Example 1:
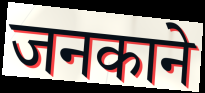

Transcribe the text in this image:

जनकाने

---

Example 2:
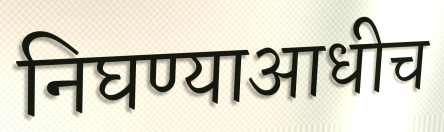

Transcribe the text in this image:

निघण्याआधीच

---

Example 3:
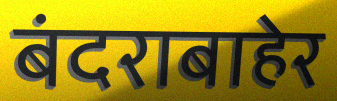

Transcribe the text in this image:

बंदराबाहेर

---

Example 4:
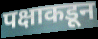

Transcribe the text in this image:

पक्षाकडून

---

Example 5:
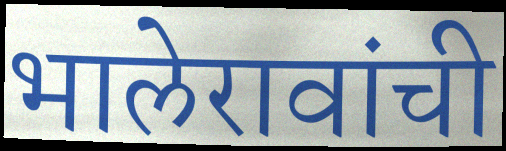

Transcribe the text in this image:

भालेरावांची